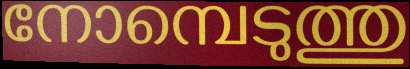
നോമ്പെടുത്തു